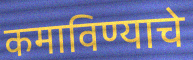
कमाविण्याचे